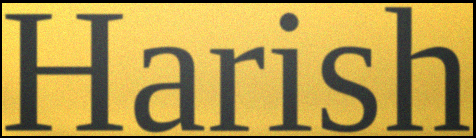
Harish